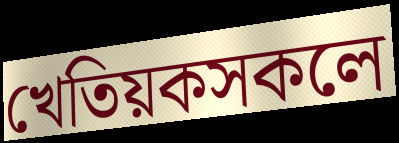
খেতিয়কসকলে